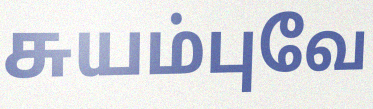
சுயம்புவே